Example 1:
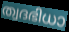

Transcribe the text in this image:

ത്വദഭിധാ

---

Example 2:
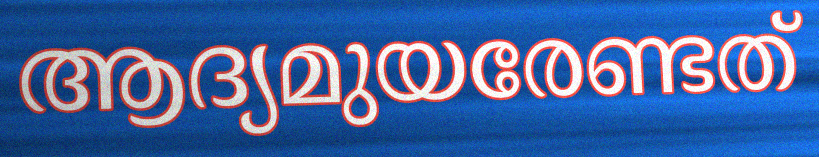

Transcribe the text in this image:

ആദ്യമുയരേണ്ടത്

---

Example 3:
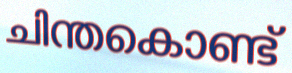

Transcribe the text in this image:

ചിന്തകൊണ്ട്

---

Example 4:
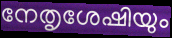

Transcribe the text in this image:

നേതൃശേഷിയും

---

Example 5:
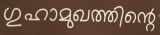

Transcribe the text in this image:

ഗുഹാമുഖത്തിന്റെ